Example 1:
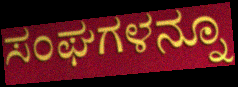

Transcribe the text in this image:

ಸಂಘಗಳನ್ನೂ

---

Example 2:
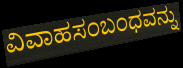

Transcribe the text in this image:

ವಿವಾಹಸಂಬಂಧವನ್ನು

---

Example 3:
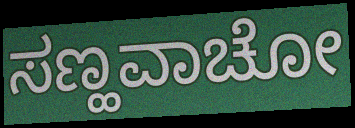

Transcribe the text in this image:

ಸಣ್ಹವಾಚೋ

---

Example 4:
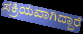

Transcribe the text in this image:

ಸಕ್ರಿಯವಾಗಿದ್ದಾರೆ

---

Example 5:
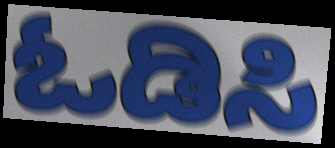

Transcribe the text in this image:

ಓಡಿಸಿ